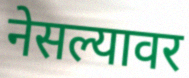
नेसल्यावर